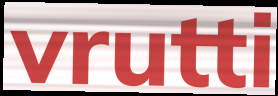
vrutti